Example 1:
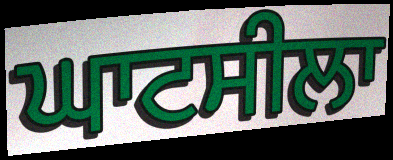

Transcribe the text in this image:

ਘਾਟਸੀਲਾ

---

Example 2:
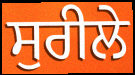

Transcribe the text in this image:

ਸੁਰੀਲੇ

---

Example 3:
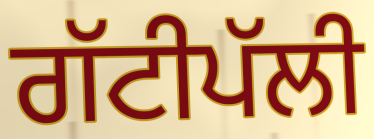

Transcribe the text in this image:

ਗੱਟੀਪੱਲੀ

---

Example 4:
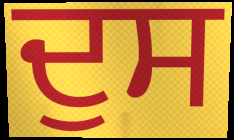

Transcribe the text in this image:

ਦੁਸ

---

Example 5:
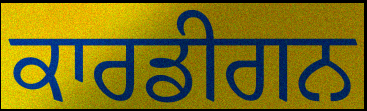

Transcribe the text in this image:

ਕਾਰਡੀਗਨ